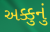
અક્કુનું